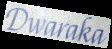
Dwaraka